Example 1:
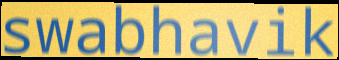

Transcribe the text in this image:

swabhavik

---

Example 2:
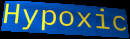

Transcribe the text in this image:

Hypoxic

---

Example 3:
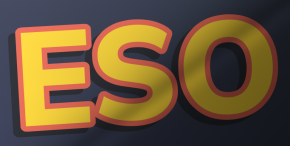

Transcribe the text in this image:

ESO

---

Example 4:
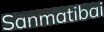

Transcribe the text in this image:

Sanmatibai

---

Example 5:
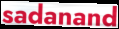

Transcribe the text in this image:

sadanand